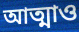
আত্মাও